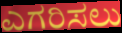
ಎಗರಿಸಲು